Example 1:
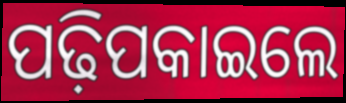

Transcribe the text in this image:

ପଢ଼ିପକାଇଲେ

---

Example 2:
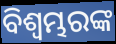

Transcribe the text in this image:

ବିଶ୍ୱମ୍ଭରଙ୍କ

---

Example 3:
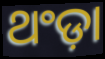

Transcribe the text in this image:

ଥଂଡ଼ା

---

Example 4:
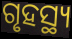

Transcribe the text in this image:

ଗୃହସ୍ଥ୍ୟ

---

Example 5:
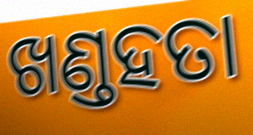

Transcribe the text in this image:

ଖଣ୍ଡହତା